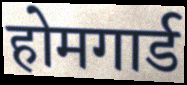
होमगार्ड